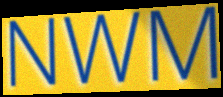
NWM